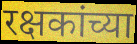
रक्षकांच्या